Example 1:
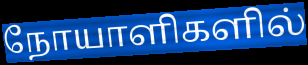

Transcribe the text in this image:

நோயாளிகளில்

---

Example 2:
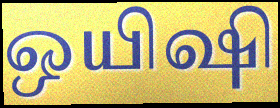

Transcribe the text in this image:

ஒயிஷி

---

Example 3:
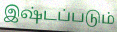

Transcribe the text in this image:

இஷ்டப்படும்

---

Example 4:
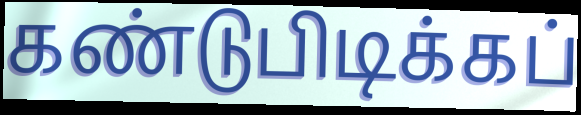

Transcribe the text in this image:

கண்டுபிடிக்கப்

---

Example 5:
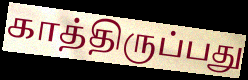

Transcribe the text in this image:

காத்திருப்பது